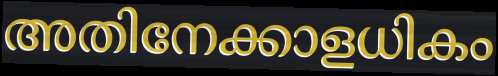
അതിനേക്കാളധികം